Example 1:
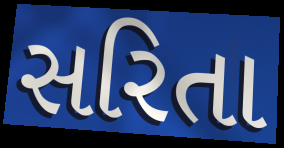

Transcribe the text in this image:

સરિતા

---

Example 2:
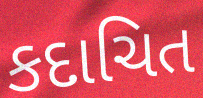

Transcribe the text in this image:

કદાચિત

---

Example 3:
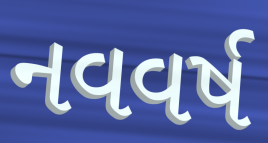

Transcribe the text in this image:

નવવર્ષ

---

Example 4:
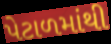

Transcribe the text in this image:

પેટાળમાંથી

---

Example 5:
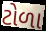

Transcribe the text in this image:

ટોળા